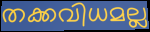
തക്കവിധമല്ല